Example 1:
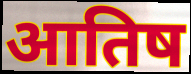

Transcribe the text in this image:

आतिष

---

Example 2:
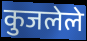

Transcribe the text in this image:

कुजलेले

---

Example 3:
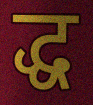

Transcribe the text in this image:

द्ध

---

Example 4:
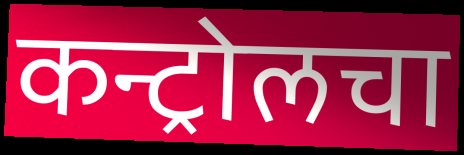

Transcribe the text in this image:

कन्ट्रोलचा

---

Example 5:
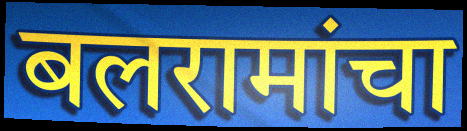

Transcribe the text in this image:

बलरामांचा